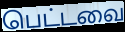
பெட்டவை